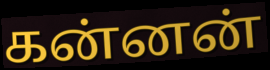
கன்னன்